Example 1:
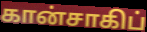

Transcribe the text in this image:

கான்சாகிப்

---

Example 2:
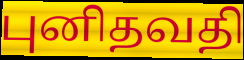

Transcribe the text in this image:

புனிதவதி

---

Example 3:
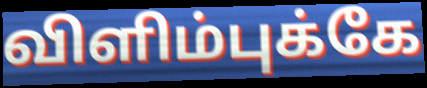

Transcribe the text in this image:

விளிம்புக்கே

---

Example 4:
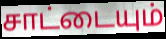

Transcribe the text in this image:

சாட்டையும்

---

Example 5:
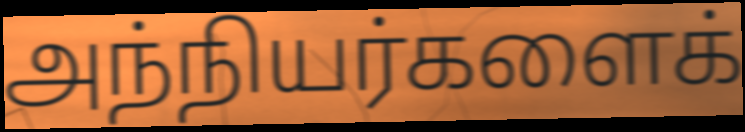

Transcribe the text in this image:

அந்நியர்களைக்